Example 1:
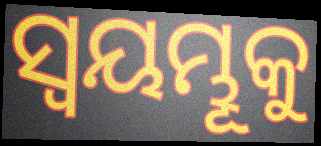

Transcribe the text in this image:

ସ୍ଵୟମ୍ଭୂକୁ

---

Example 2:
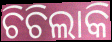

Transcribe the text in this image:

ଚିଚିଲାକି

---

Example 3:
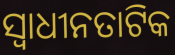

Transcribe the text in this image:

ସ୍ୱାଧୀନତାଟିକ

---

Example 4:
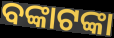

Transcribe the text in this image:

ବଙ୍କାଟଙ୍କା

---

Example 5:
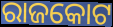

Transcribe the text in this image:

ରାଜକୋଟ